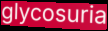
glycosuria